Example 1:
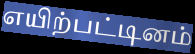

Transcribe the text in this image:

எயிற்பட்டினம்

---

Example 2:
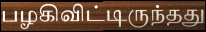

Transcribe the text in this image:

பழகிவிட்டிருந்தது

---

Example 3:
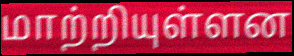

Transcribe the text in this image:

மாற்றியுள்ளன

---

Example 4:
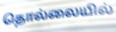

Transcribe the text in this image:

தொல்லையில்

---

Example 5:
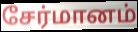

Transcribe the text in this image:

சேர்மானம்